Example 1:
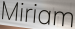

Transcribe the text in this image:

Miriam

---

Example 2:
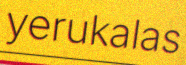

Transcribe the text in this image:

yerukalas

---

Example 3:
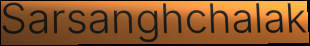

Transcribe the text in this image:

Sarsanghchalak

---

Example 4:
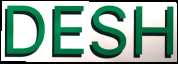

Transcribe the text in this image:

DESH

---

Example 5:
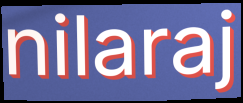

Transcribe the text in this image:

nilaraj